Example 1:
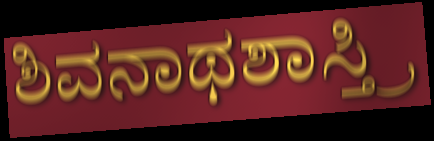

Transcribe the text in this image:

ಶಿವನಾಥಶಾಸ್ತ್ರಿ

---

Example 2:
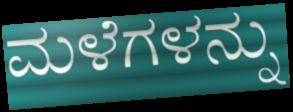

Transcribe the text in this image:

ಮಳೆಗಳನ್ನು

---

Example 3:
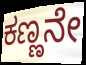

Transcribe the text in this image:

ಕಣ್ಣನೇ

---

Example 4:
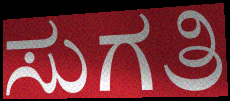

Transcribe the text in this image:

ಸುಗತಿ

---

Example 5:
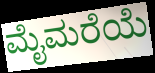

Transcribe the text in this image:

ಮೈಮರೆಯೆ